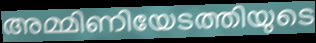
അമ്മിണിയേടത്തിയുടെ